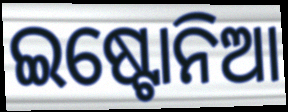
ଇଷ୍ଟୋନିଆ